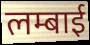
लम्बाई